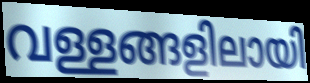
വള്ളങ്ങളിലായി